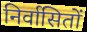
निर्वासितों